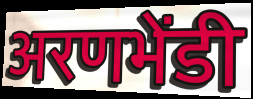
अरणभेंडी